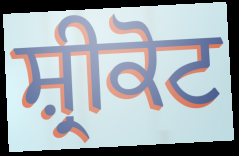
ਸ਼੍ਰੀਕੋਟ